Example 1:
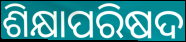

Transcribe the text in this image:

ଶିକ୍ଷାପରିଷଦ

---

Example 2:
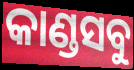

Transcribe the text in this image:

କାଣ୍ଡସବୁ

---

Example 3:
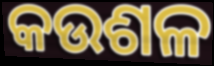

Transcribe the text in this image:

କଉଶଳ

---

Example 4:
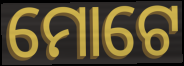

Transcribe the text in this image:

ମୋଟେ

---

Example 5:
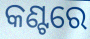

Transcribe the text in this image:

କଣ୍ଟରେ